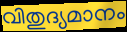
വിതുദ്യമാനം